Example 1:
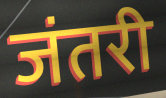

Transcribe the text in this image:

जंतरी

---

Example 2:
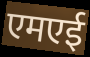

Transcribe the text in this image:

एमएई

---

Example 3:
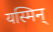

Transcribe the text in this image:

यस्मिन्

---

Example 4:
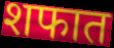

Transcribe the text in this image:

शफात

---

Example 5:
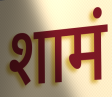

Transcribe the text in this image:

शामं